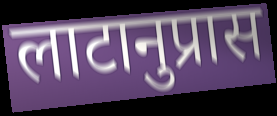
लाटानुप्रास